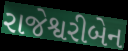
રાજેશ્વરીબેન